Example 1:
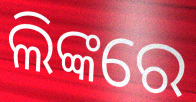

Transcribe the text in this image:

ଲିଙ୍କରେ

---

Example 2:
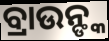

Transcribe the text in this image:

ବ୍ରାଉନ୍ଙ୍କ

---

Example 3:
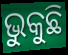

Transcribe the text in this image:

ଭୁକୁଛି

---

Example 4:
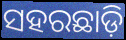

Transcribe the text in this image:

ସହରଛାଡ଼ି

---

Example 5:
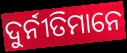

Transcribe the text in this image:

ଦୁର୍ନୀତିମାନେ